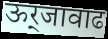
ऊर्जावाढ